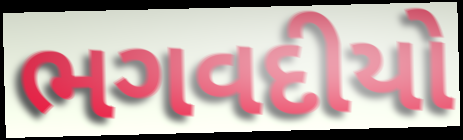
ભગવદીયો